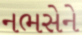
નભસેને